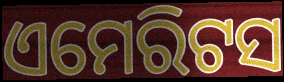
ଏମେରିଟସ